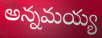
అన్నమయ్య